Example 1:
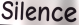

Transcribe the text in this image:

Silence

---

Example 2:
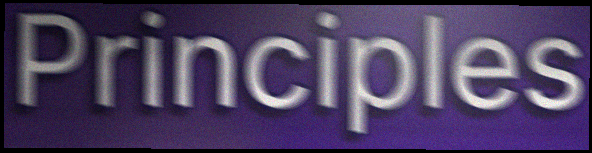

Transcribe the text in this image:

Principles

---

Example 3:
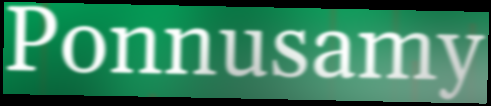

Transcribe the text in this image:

Ponnusamy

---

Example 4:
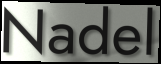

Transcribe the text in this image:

Nadel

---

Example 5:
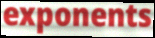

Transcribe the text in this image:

exponents